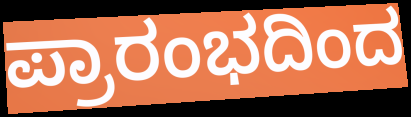
ಪ್ರಾರಂಭದಿಂದ